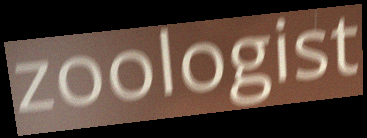
zoologist